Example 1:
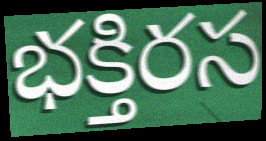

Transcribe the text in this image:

భక్తిరస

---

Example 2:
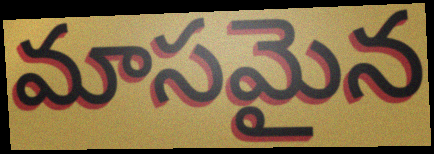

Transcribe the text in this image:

మాసమైన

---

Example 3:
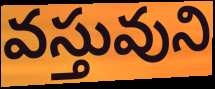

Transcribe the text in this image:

వస్తువుని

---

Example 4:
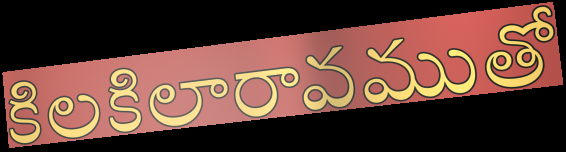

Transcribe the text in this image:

కిలకిలారావముతో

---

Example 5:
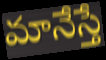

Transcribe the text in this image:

మానేస్తే